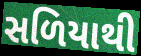
સળિયાથી